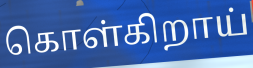
கொள்கிறாய்